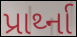
પ્રાર્થ્ના